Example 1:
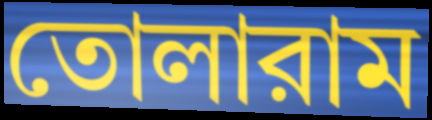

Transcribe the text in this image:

তোলারাম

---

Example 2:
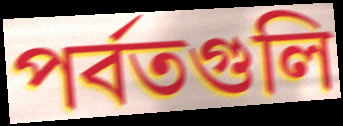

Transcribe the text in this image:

পর্বতগুলি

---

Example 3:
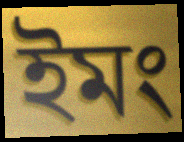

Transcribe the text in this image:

ইমং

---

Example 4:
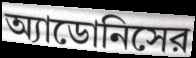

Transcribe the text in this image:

অ্যাডোনিসের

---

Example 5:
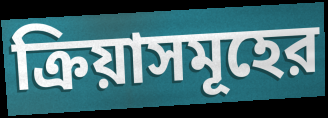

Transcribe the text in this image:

ক্রিয়াসমূহের